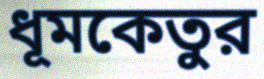
ধূমকেতুর